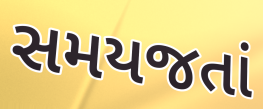
સમયજતાં